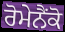
ਰੋਮੇਨੈਂਕੋ